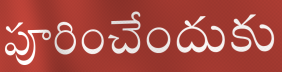
పూరించేందుకు